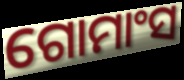
ଗୋମାଂସ